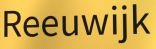
Reeuwijk